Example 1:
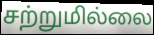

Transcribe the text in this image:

சற்றுமில்லை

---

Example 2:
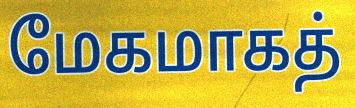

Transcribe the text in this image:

மேகமாகத்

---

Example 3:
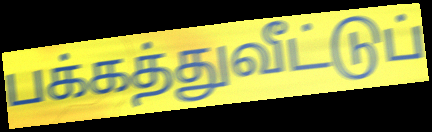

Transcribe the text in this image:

பக்கத்துவீட்டுப்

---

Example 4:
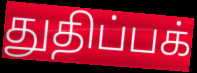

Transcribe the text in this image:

துதிப்பக்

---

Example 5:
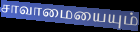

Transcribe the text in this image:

சாவாமையையும்